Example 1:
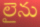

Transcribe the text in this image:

లైను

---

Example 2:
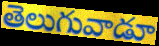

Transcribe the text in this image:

తెలుగువాడూ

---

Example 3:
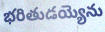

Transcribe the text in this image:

భరితుడయ్యెను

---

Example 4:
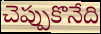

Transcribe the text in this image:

చెప్పుకొనేది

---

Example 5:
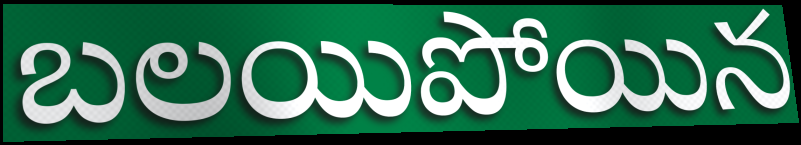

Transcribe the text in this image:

బలయిపోయిన